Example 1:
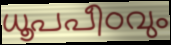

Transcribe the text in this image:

ധൂപപീഠവും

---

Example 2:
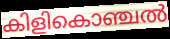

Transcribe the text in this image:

കിളികൊഞ്ചൽ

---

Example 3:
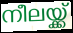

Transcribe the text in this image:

നീലയ്ക്ക്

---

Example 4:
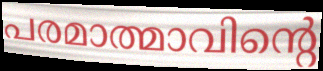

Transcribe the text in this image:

പരമാത്മാവിന്റെ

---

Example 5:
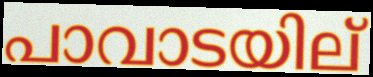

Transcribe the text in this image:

പാവാടയില്